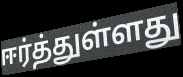
ஈர்த்துள்ளது